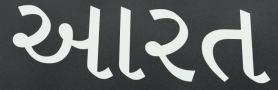
આરત